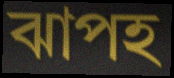
ঝাপহ